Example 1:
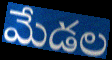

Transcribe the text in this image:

మేడల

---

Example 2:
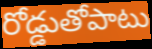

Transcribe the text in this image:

రోడ్డుతోపాటు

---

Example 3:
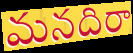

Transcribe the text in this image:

మనదిరా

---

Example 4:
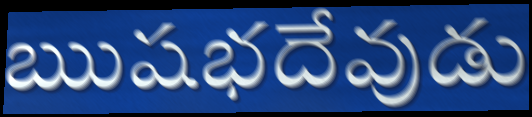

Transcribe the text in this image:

ఋషభదేవుడు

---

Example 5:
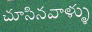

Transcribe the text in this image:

చూసినవాళ్ళు